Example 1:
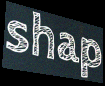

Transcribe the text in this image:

shap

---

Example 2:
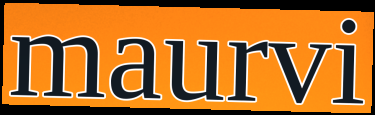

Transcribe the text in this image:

maurvi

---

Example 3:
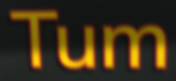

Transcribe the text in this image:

Tum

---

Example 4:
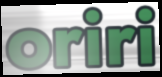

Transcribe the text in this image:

oriri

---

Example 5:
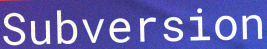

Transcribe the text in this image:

Subversion